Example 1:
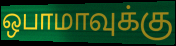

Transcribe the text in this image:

ஒபாமாவுக்கு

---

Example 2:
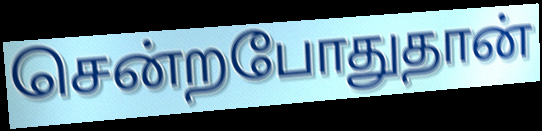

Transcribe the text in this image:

சென்றபோதுதான்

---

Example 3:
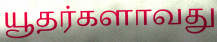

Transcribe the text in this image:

யூதர்களாவது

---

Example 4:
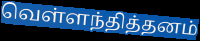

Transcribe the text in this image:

வெள்ளந்தித்தனம்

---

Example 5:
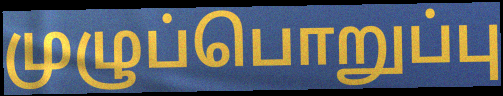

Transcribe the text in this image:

முழுப்பொறுப்பு